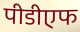
पीडीएफ